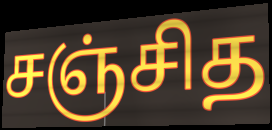
சஞ்சித